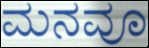
ಮನವೂ